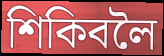
শিকিবলৈ